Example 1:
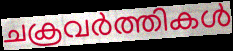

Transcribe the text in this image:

ചക്രവർത്തികൾ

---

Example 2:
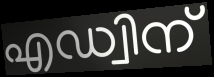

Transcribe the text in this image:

എഡ്വിന്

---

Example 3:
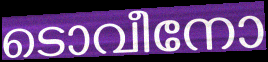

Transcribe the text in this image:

ടൊവീനോ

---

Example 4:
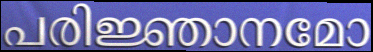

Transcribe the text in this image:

പരിജ്ഞാനമോ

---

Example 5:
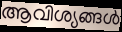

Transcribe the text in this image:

ആവിശ്യങ്ങൾ